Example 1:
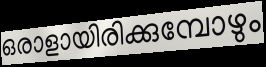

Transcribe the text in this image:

ഒരാളായിരിക്കുമ്പോഴും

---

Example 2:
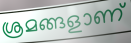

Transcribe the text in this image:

ശ്രമങ്ങളാണ്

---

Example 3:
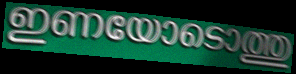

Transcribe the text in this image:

ഇണയോടൊത്തു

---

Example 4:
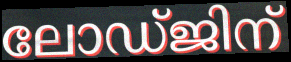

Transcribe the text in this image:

ലോഡ്ജിന്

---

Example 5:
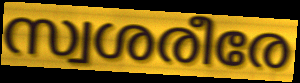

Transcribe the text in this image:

സ്വശരീരേ